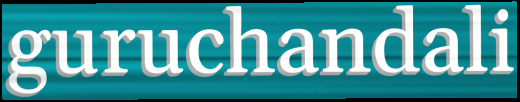
guruchandali